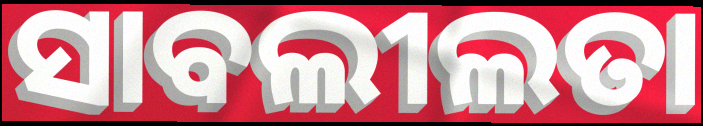
ସାବଲୀଲତା